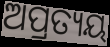
ଅପ୍ରତ୍ୟୟ